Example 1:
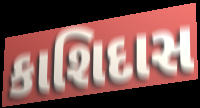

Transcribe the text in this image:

કાશિદાસ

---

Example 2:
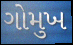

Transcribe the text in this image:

ગોમુખ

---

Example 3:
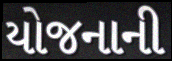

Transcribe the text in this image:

યોજનાની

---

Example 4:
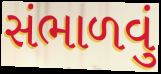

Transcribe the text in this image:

સંભાળવું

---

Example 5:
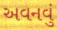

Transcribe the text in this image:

અવનવું